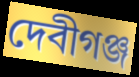
দেবীগঞ্জ